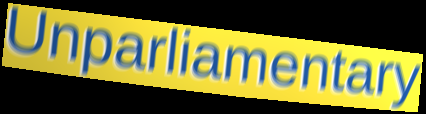
Unparliamentary